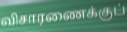
விசாரணைக்குப்